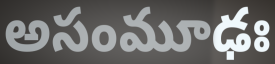
అసంమూఢః